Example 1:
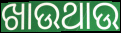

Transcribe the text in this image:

ଖାଉଥାଉ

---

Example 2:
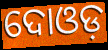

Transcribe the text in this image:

ଦୋଓଡ଼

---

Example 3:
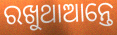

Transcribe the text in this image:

ରଖୁଥାଆନ୍ତେ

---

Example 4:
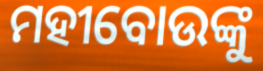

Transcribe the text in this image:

ମହୀବୋଉଙ୍କୁ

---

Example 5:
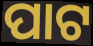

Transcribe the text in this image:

ପାଟ